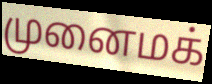
முனைமக்